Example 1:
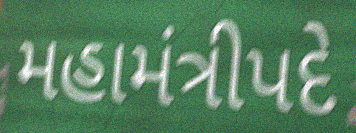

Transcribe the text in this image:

મહામંત્રીપદે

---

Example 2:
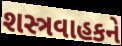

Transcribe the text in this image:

શસ્ત્રવાહકને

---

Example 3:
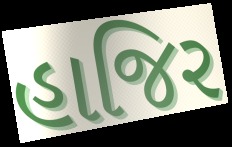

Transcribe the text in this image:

હાજિર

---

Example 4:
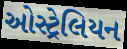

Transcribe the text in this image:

ઓસ્ટ્રેલિયન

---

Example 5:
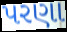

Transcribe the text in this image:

પરણા